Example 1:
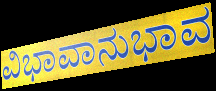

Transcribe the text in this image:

ವಿಭಾವಾನುಭಾವ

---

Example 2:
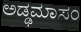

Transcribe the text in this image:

ಅಡ್ಢಮಾಸಂ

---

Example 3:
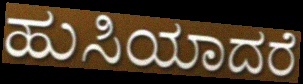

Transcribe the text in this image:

ಹುಸಿಯಾದರೆ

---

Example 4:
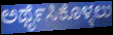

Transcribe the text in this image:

ಅರ್ಥೈಸಿಕೊಳ್ಳಲು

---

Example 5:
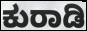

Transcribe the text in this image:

ಕುರಾಡಿ